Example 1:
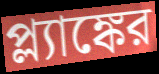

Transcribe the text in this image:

প্ল্যাঙ্কের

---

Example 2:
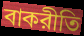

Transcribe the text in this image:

বাকরীতি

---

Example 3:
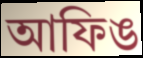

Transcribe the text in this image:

আফিঙ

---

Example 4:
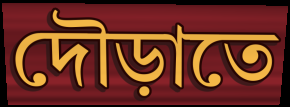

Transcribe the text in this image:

দৌড়াতে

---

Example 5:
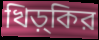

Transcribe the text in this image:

খিড়্‌কির